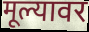
मूल्यावर